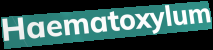
Haematoxylum